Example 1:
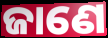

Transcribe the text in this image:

ଜାଣେ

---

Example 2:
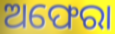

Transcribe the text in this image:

ଅଫେରା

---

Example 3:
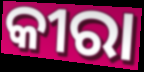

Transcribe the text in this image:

କୀରା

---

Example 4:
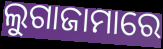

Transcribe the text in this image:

ଲୁଗାଜାମାରେ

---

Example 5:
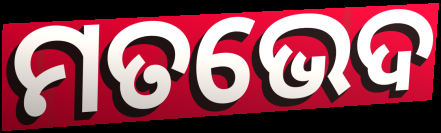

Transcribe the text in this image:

ମତଭେଦ